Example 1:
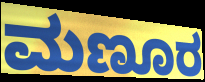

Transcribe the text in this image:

ಮಣೂರ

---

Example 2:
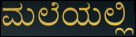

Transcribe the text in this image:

ಮಲೆಯಲ್ಲಿ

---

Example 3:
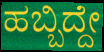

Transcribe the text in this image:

ಹಬ್ಬಿದ್ದೇ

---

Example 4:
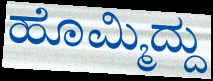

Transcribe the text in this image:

ಹೊಮ್ಮಿದ್ದು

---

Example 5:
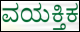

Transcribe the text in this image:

ವಯಕ್ತಿಕ